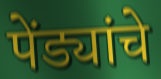
पेंड्यांचे